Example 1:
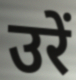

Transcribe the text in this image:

उरें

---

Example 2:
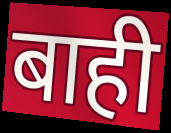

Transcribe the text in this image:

बाही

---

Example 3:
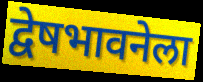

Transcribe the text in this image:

द्वेषभावनेला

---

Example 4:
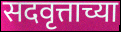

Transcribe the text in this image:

सदवृत्ताच्या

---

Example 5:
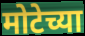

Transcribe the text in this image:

मोटेच्या